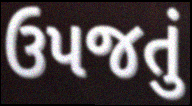
ઉપજતું